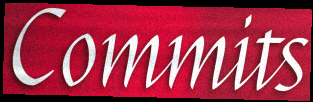
Commits